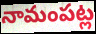
నామంపట్ల